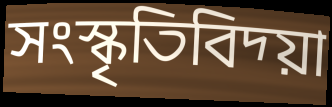
সংস্কৃতিবিদ্য়া